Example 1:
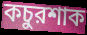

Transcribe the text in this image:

কচুরশাক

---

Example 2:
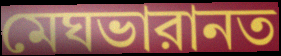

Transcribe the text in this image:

মেঘভারানত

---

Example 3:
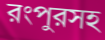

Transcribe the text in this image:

রংপুরসহ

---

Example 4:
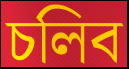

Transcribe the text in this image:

চলিব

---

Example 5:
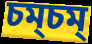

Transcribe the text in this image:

চম্চম্